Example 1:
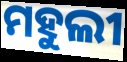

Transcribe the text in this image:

ମହୁଲୀ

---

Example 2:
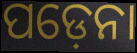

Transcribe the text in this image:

ପଡ଼େନା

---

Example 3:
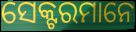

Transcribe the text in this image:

ସେକ୍ଟରମାନେ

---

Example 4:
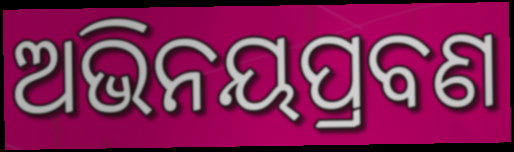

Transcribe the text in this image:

ଅଭିନୟପ୍ରବଣ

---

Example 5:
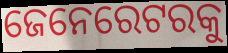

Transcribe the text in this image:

ଜେନେରେଟରକୁ